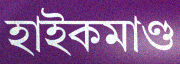
হাইকমাণ্ড